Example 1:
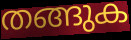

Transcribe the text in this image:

തങ്ങുക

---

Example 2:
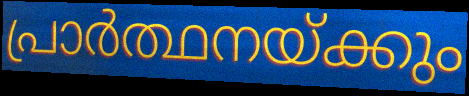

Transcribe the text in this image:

പ്രാർത്ഥനയ്ക്കും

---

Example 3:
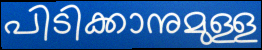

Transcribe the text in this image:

പിടിക്കാനുമുള്ള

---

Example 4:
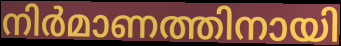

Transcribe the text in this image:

നിർമാണത്തിനായി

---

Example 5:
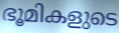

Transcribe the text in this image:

ഭൂമികളുടെ